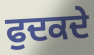
ਫੁਦਕਦੇ